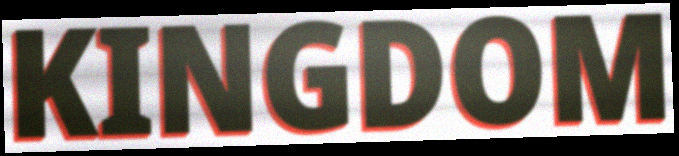
KINGDOM